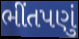
ભીંતપણું